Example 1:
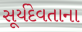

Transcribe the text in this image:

સૂર્યદેવતાના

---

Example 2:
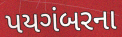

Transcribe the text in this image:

પયગંબરના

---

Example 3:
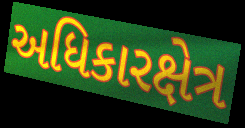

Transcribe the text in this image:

અધિકારક્ષેત્ર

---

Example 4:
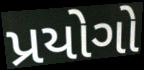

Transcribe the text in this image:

પ્રયોગો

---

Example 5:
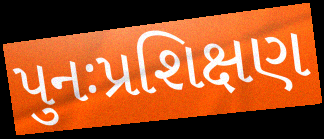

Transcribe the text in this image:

પુનઃપ્રશિક્ષણ